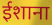
ईशाना